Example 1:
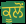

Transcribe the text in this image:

ਕੂਲੋਂ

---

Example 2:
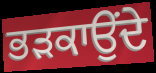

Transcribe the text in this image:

ਭੜਕਾਉਂਦੇ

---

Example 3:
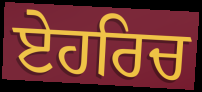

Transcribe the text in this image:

ਏਹਰਿਚ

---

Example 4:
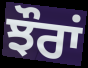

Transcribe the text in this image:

ਝੌਰਾਂ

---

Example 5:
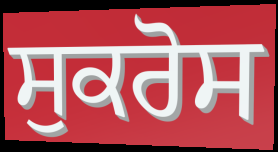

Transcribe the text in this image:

ਸੁਕਰੋਸ